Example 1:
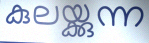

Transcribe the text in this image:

കുലയ്ക്കുന്ന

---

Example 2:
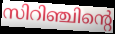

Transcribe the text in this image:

സിറിഞ്ചിന്റെ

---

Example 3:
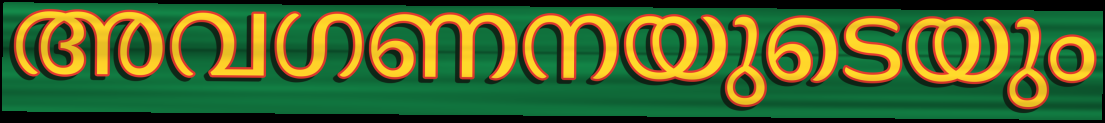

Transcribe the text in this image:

അവഗണനയുടെയും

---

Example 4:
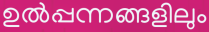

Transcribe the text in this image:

ഉൽപ്പന്നങ്ങളിലും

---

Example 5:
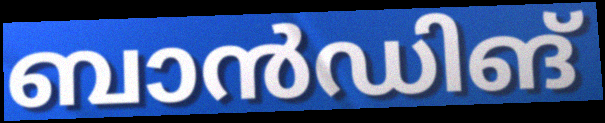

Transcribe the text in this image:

ബാൻഡിങ്